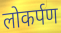
लोकर्पण